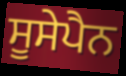
ਸੂਸੇਪੈਨ